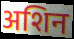
अशिन